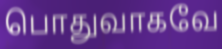
பொதுவாகவே